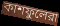
কাশফুলেরা